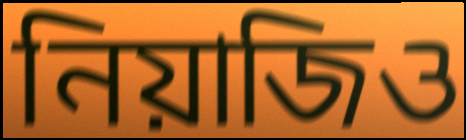
নিয়াজিও